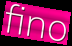
fino